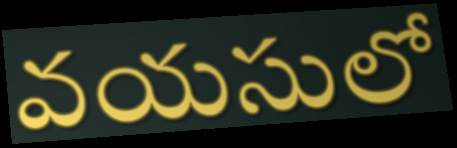
వయసులో